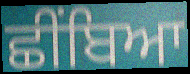
ਛੀਂਬਿਆ